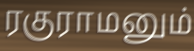
ரகுராமனும்